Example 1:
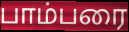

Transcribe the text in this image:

பாம்பரை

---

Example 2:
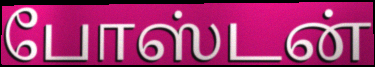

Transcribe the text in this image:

போஸ்டன்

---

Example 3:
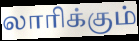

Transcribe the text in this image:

லாரிக்கும்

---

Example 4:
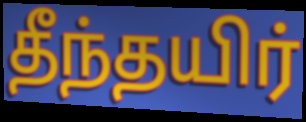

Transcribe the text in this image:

தீந்தயிர்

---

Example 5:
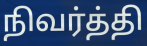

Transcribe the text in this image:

நிவர்த்தி